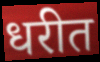
धरीत